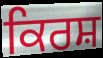
ਕਿਰਸ਼